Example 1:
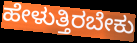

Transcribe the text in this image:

ಹೇಳುತ್ತಿರಬೇಕು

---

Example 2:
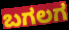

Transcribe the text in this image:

ಬಗಲಗ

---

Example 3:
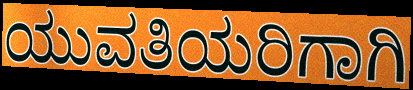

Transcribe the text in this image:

ಯುವತಿಯರಿಗಾಗಿ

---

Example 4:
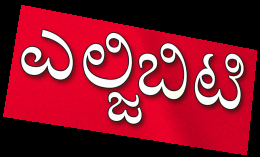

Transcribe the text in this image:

ಎಲ್ಜಿಬಿಟಿ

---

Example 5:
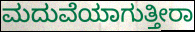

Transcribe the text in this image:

ಮದುವೆಯಾಗುತ್ತೀರಾ